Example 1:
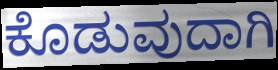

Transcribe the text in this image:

ಕೊಡುವುದಾಗಿ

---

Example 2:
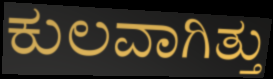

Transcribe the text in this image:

ಕುಲವಾಗಿತ್ತು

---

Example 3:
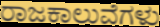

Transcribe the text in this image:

ರಾಜಕಾಲುವೆಗಳು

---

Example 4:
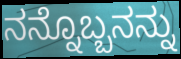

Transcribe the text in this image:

ನನ್ನೊಬ್ಬನನ್ನು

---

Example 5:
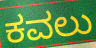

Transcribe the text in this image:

ಕವಲು